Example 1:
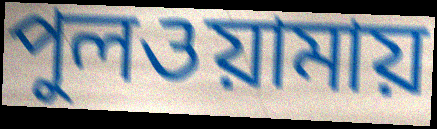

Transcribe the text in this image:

পুলওয়ামায়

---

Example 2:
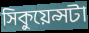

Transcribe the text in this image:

সিকুয়েন্সটা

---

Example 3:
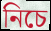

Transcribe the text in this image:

নিচে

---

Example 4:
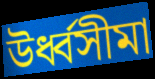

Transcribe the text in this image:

উর্ধ্বসীমা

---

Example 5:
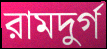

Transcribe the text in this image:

রামদুর্গ